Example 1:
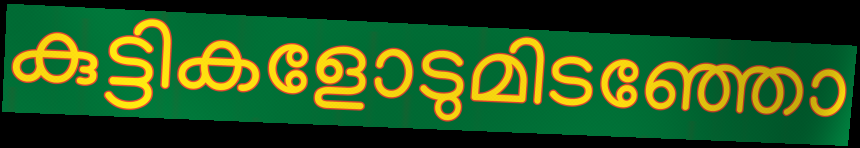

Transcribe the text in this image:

കുട്ടികളോടുമിടഞ്ഞോ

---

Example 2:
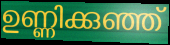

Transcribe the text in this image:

ഉണ്ണിക്കുഞ്ഞ്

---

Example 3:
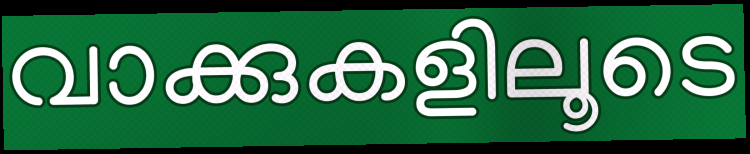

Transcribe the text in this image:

വാക്കുകളിലൂടെ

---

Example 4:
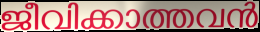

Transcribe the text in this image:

ജീവിക്കാത്തവൻ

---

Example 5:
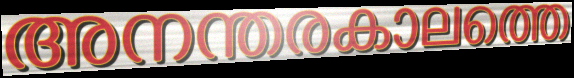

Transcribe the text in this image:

അനന്തരകാലത്തെ